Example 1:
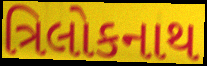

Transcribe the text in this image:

ત્રિલોકનાથ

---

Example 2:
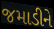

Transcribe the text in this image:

જમાડીને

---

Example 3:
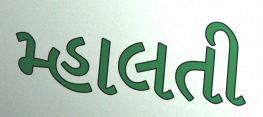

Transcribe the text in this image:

મ્હાલતી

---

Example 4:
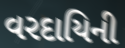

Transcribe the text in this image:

વરદાયિની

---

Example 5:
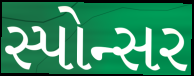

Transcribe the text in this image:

સ્પોન્સર